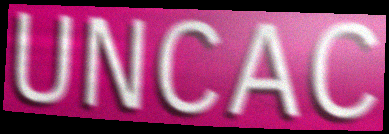
UNCAC